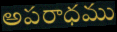
అపరాధము